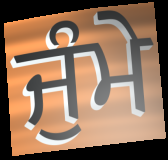
ਜੁੰਮੇ